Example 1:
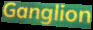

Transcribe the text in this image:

Ganglion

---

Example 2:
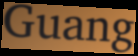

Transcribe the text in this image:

Guang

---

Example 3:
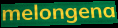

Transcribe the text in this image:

melongena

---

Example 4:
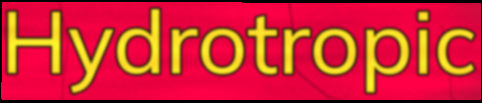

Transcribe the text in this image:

Hydrotropic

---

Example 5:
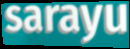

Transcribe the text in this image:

sarayu